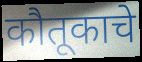
कौतूकाचे